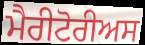
ਮੈਰੀਟੋਰੀਅਸ